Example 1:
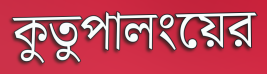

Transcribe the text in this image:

কুতুপালংয়ের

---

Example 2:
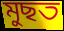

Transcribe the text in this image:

মুছত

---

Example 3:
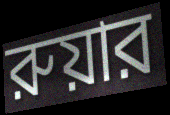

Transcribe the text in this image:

রুয়ার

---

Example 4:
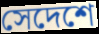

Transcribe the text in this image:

সেদেশে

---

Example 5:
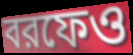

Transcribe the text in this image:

বরফেও